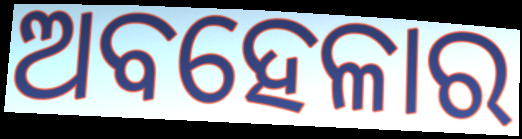
ଅବହେଳାର